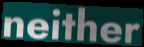
neither